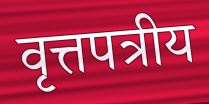
वृत्तपत्रीय